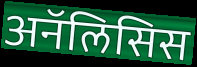
अनॅलिसिस